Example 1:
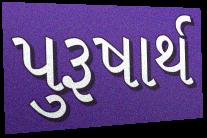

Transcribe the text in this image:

પુરૂષાર્થ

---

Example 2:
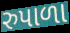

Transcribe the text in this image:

રુપાળા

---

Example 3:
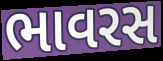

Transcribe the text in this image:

ભાવરસ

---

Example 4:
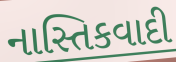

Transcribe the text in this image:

નાસ્તિકવાદી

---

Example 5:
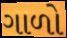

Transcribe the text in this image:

ગાળો